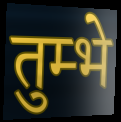
तुम्भे